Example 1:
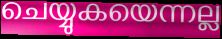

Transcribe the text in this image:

ചെയ്യുകയെന്നല്ല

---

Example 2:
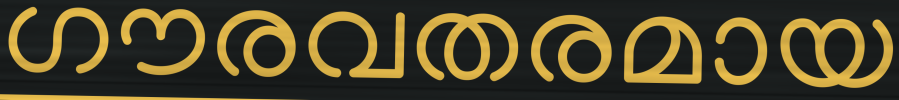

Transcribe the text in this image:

ഗൗരവതരമായ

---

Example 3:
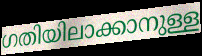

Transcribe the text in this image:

ഗതിയിലാക്കാനുള്ള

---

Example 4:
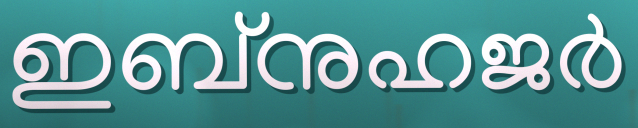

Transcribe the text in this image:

ഇബ്നുഹജർ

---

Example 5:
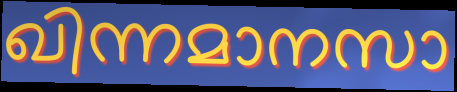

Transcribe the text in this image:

ഖിന്നമാനസാ